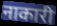
नाकारी